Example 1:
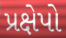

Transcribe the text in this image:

પ્રક્ષેપો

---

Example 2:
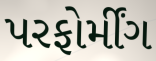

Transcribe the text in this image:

પરફોર્મીંગ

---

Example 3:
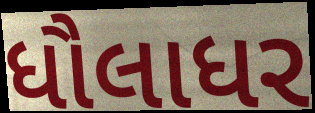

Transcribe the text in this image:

ધૌલાધર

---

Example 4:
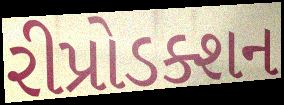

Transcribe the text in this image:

રીપ્રોડક્શન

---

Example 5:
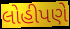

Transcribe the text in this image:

લોહીપણે